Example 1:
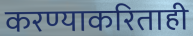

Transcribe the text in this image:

करण्याकरिताही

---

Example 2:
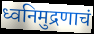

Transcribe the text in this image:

ध्वनिमुद्रणाचं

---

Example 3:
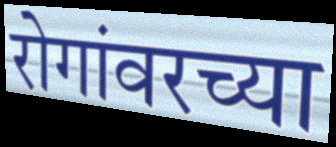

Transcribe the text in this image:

रोगांवरच्या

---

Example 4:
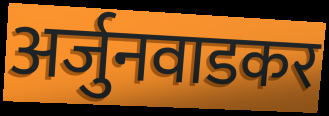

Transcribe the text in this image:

अर्जुनवाडकर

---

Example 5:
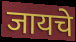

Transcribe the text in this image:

जायचे